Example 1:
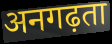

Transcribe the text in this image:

अनगढ़ता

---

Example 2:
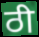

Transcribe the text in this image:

ठी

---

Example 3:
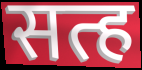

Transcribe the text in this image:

सत्ह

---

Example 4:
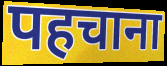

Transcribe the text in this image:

पहचाना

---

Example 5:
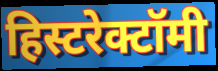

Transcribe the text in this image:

हिस्टरेक्टॉमी